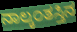
ನಾಲ್ಕಂತಸ್ತಿನ